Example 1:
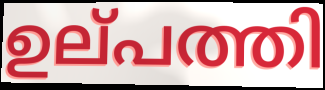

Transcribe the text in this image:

ഉല്‌പത്തി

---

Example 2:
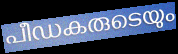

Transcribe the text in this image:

പീഡകരുടെയും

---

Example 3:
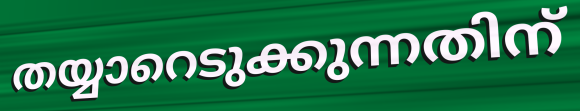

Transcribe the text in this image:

തയ്യാറെടുക്കുന്നതിന്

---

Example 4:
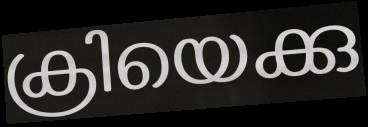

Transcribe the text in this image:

ക്രിയെക്കു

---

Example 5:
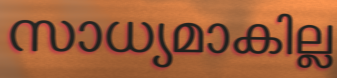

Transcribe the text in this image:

സാധ്യമാകില്ല